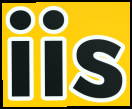
iis